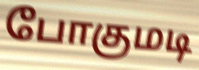
போகுமடி